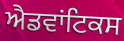
ਐਡਵਾਂਟਿਕਸ